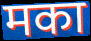
मका